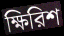
ক্ষিরিশ